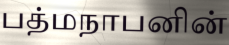
பத்மநாபனின்